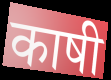
काषी